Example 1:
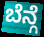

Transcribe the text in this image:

ಬೆನ್ಗೆ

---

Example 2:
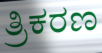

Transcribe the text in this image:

ತ್ರಿಕರಣ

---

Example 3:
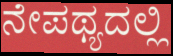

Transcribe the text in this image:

ನೇಪಥ್ಯದಲ್ಲಿ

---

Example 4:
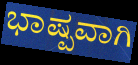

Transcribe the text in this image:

ಭಾಷ್ಪವಾಗಿ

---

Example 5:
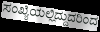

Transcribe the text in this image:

ಸಂಖ್ಯೆಯಲ್ಲಿದ್ದುದರಿಂದ